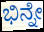
ಭಿನ್ನೇ